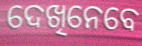
ଦେଖିନେବେ